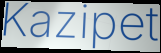
Kazipet